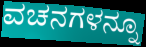
ವಚನಗಳನ್ನೂ